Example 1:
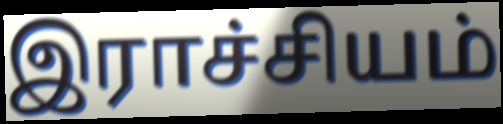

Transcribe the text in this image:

இராச்சியம்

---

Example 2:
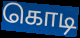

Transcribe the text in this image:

கொடி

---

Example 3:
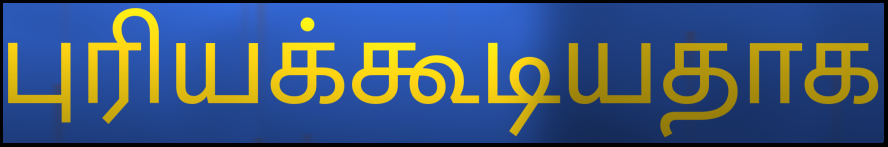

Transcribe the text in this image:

புரியக்கூடியதாக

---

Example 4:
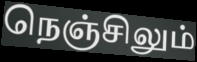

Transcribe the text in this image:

நெஞ்சிலும்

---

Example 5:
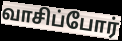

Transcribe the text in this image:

வாசிப்போர்